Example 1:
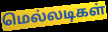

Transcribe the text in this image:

மெல்லடிகள்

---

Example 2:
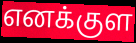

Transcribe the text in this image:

எனக்குள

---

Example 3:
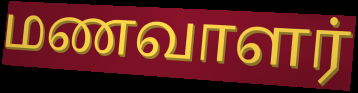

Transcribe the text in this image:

மணவாளர்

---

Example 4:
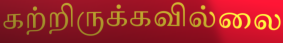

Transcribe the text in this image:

கற்றிருக்கவில்லை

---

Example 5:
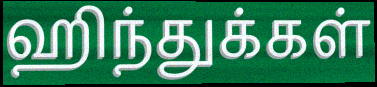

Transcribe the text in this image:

ஹிந்துக்கள்